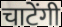
चाटेंगी